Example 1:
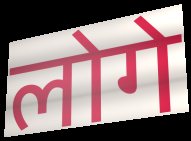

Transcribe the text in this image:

लोगे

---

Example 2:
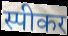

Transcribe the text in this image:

स्पीकर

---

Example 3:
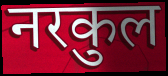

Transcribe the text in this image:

नरकुल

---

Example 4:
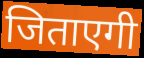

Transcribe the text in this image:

जिताएगी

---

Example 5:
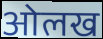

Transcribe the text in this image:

ओलख